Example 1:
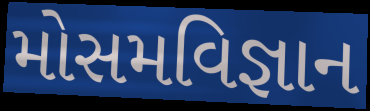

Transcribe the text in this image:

મોસમવિજ્ઞાન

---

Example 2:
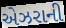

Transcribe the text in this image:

એઝરાની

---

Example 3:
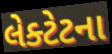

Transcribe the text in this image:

લેક્ટેટના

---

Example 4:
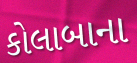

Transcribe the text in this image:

કોલાબાના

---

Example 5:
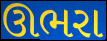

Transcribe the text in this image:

ઊભરા